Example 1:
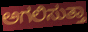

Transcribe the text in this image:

ಅಗಲಿಸುತ್ತಾ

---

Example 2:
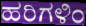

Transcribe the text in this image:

ಹರಿಗಳಿಂ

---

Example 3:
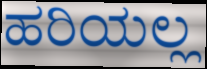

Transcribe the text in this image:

ಹರಿಯಲ್ಲ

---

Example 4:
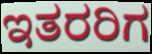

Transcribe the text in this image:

ಇತರರಿಗ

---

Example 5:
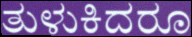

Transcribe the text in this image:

ತುಳುಕಿದರೂ